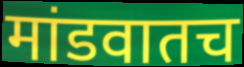
मांडवातच